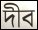
দীব